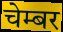
चेम्बर